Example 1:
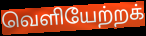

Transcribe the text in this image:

வெளியேற்றக்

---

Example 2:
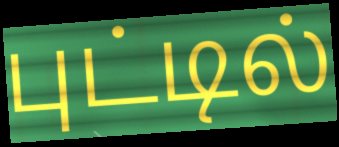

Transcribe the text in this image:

புட்டில்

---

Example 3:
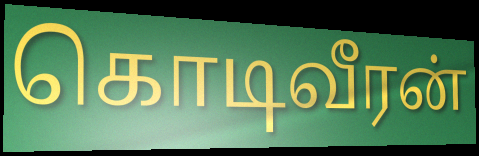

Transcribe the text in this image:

கொடிவீரன்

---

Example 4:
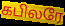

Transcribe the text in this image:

கபிலரே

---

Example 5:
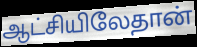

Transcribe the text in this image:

ஆட்சியிலேதான்